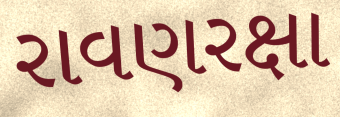
રાવણરક્ષા